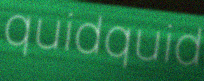
quidquid